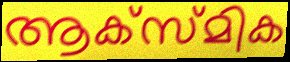
ആക്സ്മിക